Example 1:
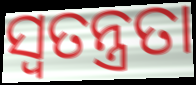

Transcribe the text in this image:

ସ୍ବତନ୍ତ୍ରତା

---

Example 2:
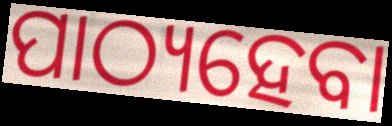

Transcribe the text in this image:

ପାଠ୍ୟହେବା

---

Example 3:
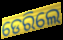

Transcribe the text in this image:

ଡେରିଲେ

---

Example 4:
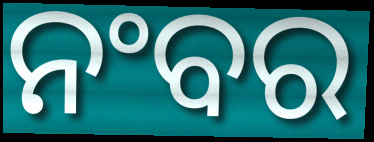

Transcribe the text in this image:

ନଂବର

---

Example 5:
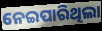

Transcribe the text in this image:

ନେଇପାରିଥିଲା